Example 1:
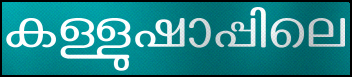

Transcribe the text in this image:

കള്ളുഷാപ്പിലെ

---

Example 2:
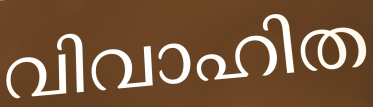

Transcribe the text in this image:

വിവാഹിത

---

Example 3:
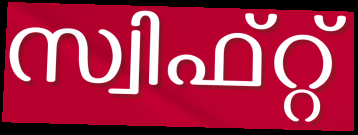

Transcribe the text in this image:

സ്വിഫ്റ്റ്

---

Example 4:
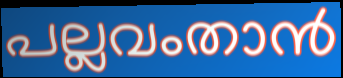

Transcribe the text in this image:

പല്ലവംതാൻ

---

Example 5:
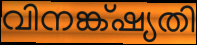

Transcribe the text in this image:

വിനങ്ക്ഷ്യതി